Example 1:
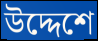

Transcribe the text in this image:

উদ্দেশে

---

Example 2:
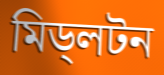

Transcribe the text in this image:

মিড্লটন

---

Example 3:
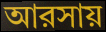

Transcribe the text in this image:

আরসায়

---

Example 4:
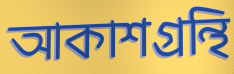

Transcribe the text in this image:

আকাশগ্রন্থি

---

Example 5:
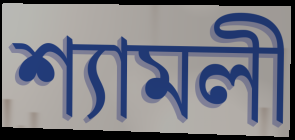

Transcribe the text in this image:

শ্যামলী